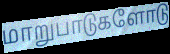
மாறுபாடுகளோடு